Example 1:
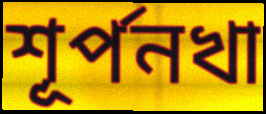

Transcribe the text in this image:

শূর্পনখা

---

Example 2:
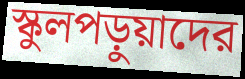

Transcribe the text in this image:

স্কুলপড়ুয়াদের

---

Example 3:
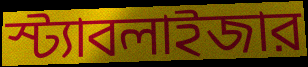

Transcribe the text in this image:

স্ট্যাবলাইজার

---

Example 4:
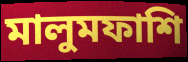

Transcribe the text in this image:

মালুমফাশি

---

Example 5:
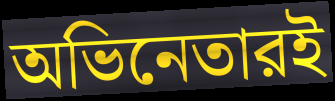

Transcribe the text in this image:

অভিনেতারই